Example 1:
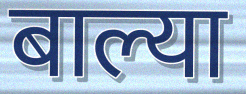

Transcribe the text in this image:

बाल्या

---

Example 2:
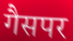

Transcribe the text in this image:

गैसपर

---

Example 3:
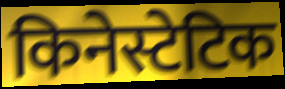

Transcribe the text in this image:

किनेस्टेटिक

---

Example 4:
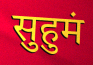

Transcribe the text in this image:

सुहुमं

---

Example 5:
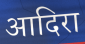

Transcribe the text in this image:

आदिरा